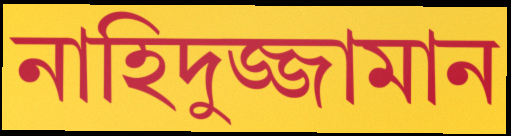
নাহিদুজ্জামান